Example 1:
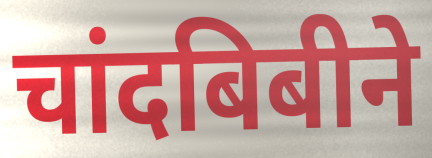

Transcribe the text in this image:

चांदबिबीने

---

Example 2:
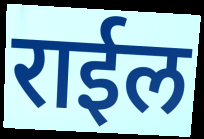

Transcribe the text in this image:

राईल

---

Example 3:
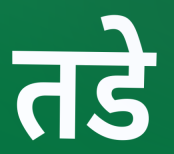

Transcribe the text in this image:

तडे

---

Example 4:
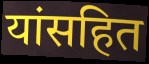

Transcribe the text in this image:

यांसहित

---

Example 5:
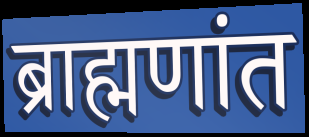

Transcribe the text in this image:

ब्राह्मणांत